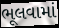
ભૂલવામાં